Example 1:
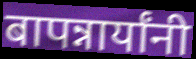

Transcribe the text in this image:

बापन्नार्यांनी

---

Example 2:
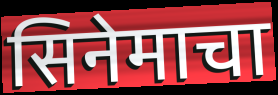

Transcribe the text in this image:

सिनेमाचा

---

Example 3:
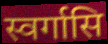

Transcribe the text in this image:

स्वर्गासि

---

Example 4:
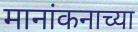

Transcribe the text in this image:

मानांकनाच्या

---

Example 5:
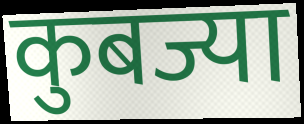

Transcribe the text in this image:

कुबज्या